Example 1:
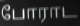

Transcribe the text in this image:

போராட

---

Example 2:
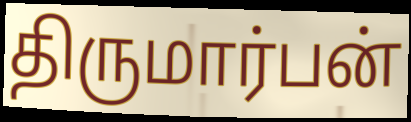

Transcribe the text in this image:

திருமார்பன்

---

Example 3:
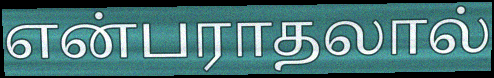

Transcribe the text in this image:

என்பராதலால்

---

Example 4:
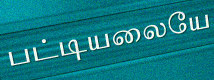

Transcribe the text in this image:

பட்டியலையே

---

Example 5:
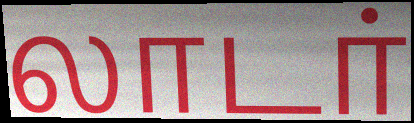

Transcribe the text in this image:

லாடர்